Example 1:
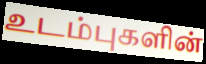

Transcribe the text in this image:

உடம்புகளின்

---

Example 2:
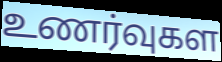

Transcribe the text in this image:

உணர்வுகள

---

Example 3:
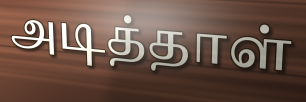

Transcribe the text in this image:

அடித்தாள்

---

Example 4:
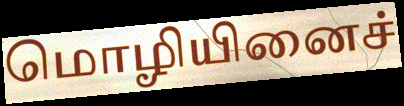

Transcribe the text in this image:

மொழியினைச்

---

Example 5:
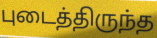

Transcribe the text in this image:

புடைத்திருந்த